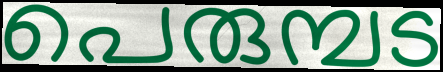
പെരുമ്പട